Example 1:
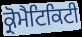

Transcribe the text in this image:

ਕ੍ਰੋਮੈਟਿਕਿਟੀ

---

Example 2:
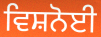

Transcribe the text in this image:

ਵਿਸ਼ਨੋਈ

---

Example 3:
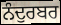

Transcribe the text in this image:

ਨੰਦੁਰਬਰ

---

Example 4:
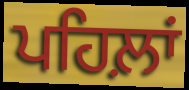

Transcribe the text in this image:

ਪਹਿਲ਼ਾਂ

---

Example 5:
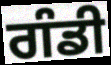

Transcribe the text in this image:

ਗੰਡੀ